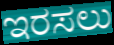
ಇರಸಲು